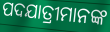
ପଦଯାତ୍ରୀମାନଙ୍କ